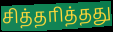
சித்தரித்தது